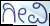
ಗೀವಿ